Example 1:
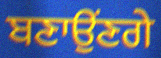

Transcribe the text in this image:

ਬਣਾਉਂਣਗੇ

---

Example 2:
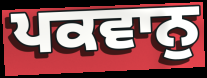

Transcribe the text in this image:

ਪਕਵਾਨੁ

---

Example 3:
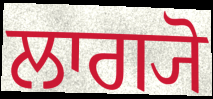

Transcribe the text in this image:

ਲਾਗ੍ਯੋ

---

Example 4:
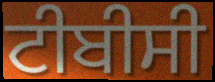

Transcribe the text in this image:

ਟੀਬੀਸੀ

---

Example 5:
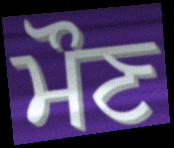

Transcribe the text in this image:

ਮੌਣ